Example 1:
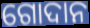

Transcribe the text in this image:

ଗୋଦାନ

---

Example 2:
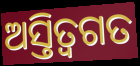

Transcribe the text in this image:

ଅସ୍ତିତ୍ବଗତ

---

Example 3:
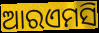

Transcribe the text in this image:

ଆରଏମସି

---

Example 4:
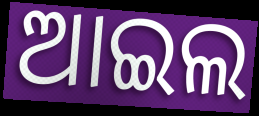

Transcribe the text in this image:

ଆଇଲ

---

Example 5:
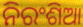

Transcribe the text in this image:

ନିରଂଶିଆ